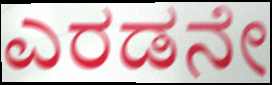
ಎರಡನೇ